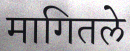
मागितले